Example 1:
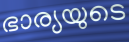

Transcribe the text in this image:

ഭാര്യയുടെ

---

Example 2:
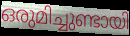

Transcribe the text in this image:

ഒരുമിച്ചുണ്ടായി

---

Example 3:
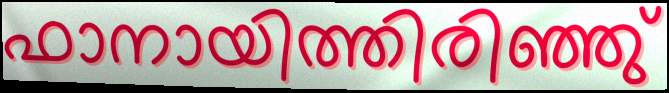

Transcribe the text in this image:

ഫാനായിത്തിരിഞ്ഞു്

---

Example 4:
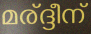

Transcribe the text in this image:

മര്ദ്ദീന്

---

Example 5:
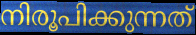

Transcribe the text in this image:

നിരൂപിക്കുന്നത്